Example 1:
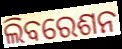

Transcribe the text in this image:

ଲିବରେଶନ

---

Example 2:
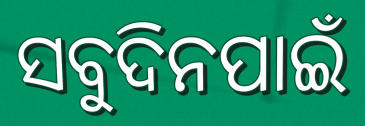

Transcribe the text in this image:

ସବୁଦିନପାଇଁ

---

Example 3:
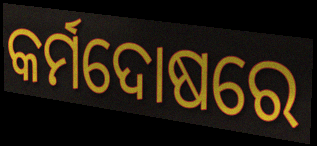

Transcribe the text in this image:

କର୍ମଦୋଷରେ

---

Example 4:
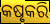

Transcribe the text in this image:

କଷୃକରି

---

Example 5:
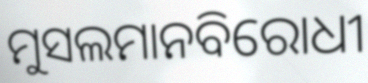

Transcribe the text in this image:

ମୁସଲମାନବିରୋଧୀ